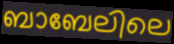
ബാബേലിലെ